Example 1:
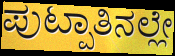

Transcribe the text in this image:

ಪುಟ್ಪಾತಿನಲ್ಲೇ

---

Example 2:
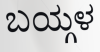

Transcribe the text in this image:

ಬಯ್ಗಳ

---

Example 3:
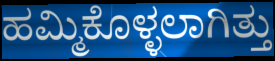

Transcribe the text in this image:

ಹಮ್ಮಿಕೊಳ್ಳಲಾಗಿತ್ತು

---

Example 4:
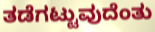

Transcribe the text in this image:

ತಡೆಗಟ್ಟುವುದೆಂತು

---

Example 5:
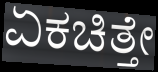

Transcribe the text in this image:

ಏಕಚಿತ್ತೇ